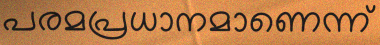
പരമപ്രധാനമാണെന്ന്